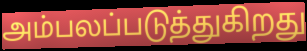
அம்பலப்படுத்துகிறது